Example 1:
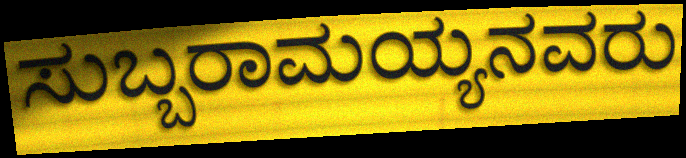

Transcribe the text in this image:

ಸುಬ್ಬರಾಮಯ್ಯನವರು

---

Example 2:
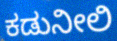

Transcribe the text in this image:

ಕಡುನೀಲಿ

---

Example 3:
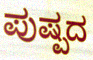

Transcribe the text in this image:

ಪುಷ್ಪದ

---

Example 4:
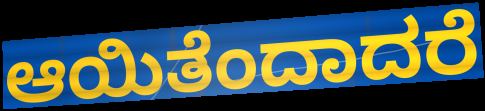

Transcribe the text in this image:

ಆಯಿತೆಂದಾದರೆ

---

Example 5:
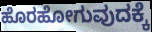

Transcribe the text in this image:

ಹೊರಹೋಗುವುದಕ್ಕೆ